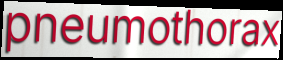
pneumothorax